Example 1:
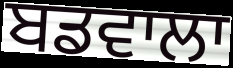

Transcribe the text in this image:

ਬਡਵਾਲਾ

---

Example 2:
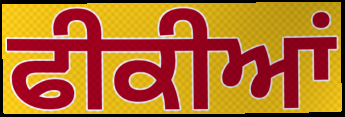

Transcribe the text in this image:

ਫੀਕੀਆਂ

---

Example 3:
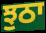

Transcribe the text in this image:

ਝੁਠਾ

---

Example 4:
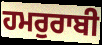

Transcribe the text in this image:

ਹਮਰੁਰਾਬੀ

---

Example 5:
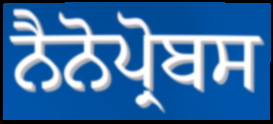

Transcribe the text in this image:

ਨੈਨੋਪ੍ਰੋਬਸ